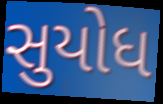
સુયોધ